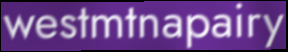
westmtnapairy